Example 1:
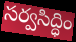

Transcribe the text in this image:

సర్వసిద్ధిం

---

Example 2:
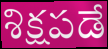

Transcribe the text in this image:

శిక్షపడే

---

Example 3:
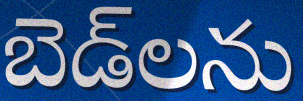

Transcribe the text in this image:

బెడ్‌లను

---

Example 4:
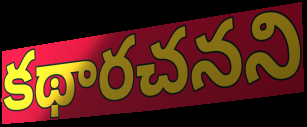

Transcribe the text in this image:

కథారచనని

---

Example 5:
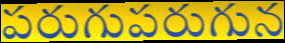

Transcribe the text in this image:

పరుగుపరుగున